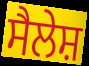
ਸੈਲੇਸ਼